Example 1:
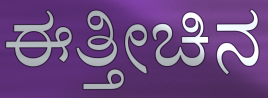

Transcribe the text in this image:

ಈತ್ತೀಚಿನ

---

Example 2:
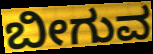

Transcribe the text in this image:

ಬೀಗುವ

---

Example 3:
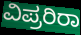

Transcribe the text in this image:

ವಿಪ್ರರಿರಾ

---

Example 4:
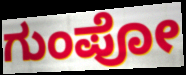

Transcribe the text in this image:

ಗುಂಪೋ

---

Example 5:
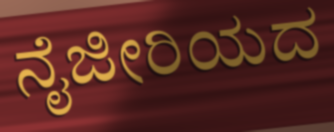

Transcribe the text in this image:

ನೈಜೀರಿಯದ